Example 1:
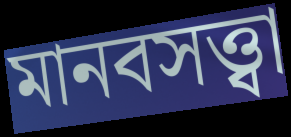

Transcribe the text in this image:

মানবসত্ত্বা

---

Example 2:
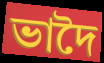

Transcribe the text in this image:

ভাদৈ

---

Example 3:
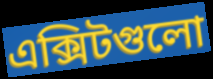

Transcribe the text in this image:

এক্সিটগুলো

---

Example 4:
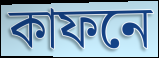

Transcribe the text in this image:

কাফনে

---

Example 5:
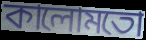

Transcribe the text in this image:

কালোমতো